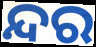
ନ୍ଦର